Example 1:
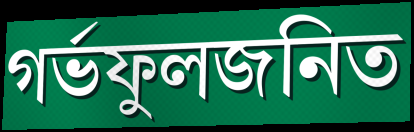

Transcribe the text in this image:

গর্ভফুলজনিত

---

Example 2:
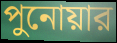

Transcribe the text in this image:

পুনোয়ার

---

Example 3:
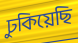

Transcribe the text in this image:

ঢুকিয়েছি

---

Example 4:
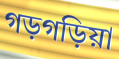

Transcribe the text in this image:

গড়গড়িয়া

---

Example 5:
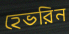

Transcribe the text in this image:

হেভরিন